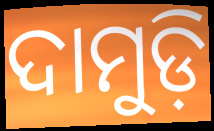
ଦାମୁଡ଼ି